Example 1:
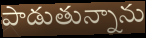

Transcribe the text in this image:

పాడుతున్నాను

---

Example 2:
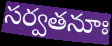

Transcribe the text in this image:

సర్వతనూః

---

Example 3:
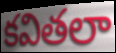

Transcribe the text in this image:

కవితలా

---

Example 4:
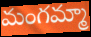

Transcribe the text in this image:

మంగమ్మా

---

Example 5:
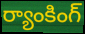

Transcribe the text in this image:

ర్యాంకింగ్